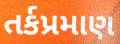
તર્કપ્રમાણ